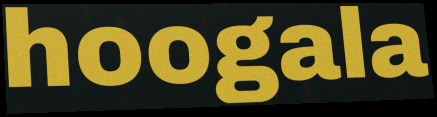
hoogala